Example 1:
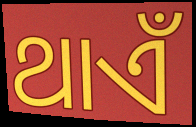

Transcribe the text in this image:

ଥାଏଁ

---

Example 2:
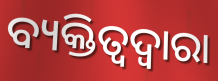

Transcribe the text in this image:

ବ୍ୟକ୍ତିତ୍ୱଦ୍ୱାରା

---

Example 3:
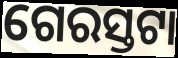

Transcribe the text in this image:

ଗେରସ୍ତଟା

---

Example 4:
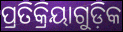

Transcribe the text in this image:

ପ୍ରତିକ୍ରିୟାଗୁଡ଼ିକ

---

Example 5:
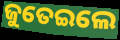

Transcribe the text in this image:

ଜୁତେଇଲେ